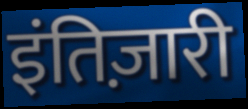
इंतिज़ारी